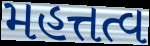
મહત્તત્વ